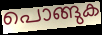
പൊങ്ങുക